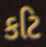
કટિ